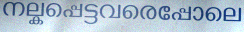
നല്കപ്പെട്ടവരെപ്പോലെ